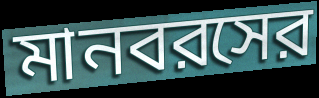
মানবরসের